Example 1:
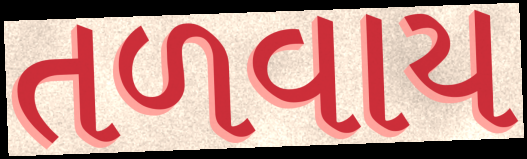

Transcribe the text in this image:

તળવાય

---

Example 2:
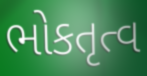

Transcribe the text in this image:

ભોકતૃત્વ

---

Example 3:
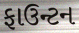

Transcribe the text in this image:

ફાઉન્ટન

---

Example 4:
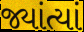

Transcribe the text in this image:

જ્યાંત્યાં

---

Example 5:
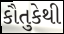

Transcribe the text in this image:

કૌતુકેથી